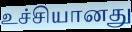
உச்சியானது